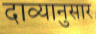
दाव्यानुसार